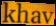
khav